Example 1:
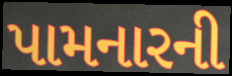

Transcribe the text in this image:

પામનારની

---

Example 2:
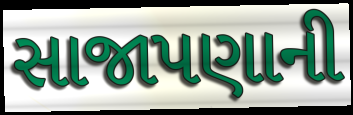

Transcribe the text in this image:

સાજાપણાની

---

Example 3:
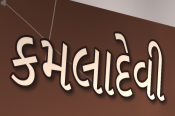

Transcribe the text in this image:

કમલાદેવી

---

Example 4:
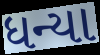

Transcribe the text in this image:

ધન્યા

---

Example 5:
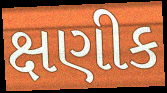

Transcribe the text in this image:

ક્ષણીક